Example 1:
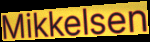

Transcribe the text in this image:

Mikkelsen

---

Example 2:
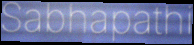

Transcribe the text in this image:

Sabhapathi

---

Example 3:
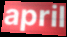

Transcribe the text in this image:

april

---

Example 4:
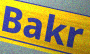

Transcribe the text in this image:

Bakr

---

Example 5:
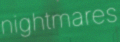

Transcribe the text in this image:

nightmares